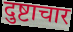
दुष्टाचार